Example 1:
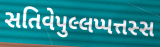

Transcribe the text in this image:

સતિવેપુલ્લપ્પત્તસ્સ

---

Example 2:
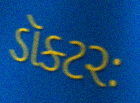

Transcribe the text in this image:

ડૉક્ટરઃ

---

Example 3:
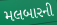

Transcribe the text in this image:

મલબારની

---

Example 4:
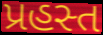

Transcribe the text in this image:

પ્રહસ્ત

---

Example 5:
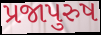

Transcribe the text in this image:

પ્રજાપુરુષ